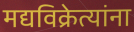
मद्यविक्रेत्यांना